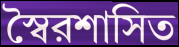
স্বৈরশাসিত